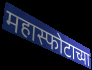
महास्फोटाच्या